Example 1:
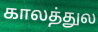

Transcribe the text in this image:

காலத்துல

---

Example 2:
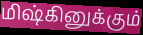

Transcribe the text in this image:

மிஷ்கினுக்கும்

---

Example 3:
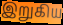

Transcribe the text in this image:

இறுகிய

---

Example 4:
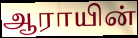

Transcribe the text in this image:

ஆராயின்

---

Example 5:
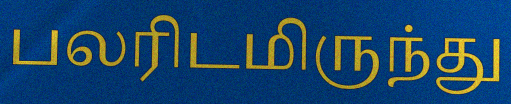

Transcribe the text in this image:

பலரிடமிருந்து